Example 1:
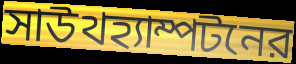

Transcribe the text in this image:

সাউথহ্যাম্পটনের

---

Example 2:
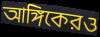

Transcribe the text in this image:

আঙ্গিকেরও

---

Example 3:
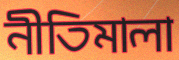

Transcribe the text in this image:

নীতিমালা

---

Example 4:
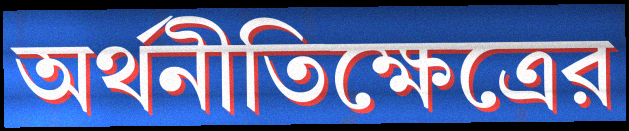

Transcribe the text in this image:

অর্থনীতিক্ষেত্রের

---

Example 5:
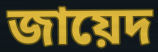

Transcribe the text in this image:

জায়েদ